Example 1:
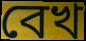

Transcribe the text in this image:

বেখ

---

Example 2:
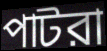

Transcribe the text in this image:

পাটরা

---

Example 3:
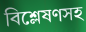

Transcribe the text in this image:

বিশ্লেষণসহ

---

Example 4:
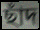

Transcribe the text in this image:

ছাঁদ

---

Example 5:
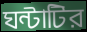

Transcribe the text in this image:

ঘন্টাটির